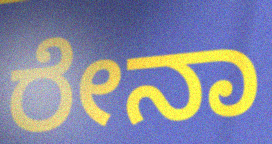
ರೇನಾ